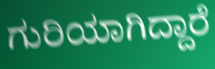
ಗುರಿಯಾಗಿದ್ದಾರೆ